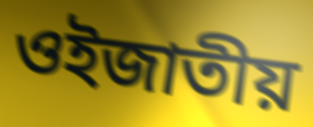
ওইজাতীয়